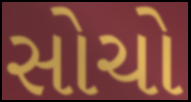
સોચો